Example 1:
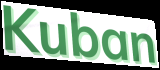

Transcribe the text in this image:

Kuban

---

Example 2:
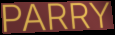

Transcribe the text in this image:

PARRY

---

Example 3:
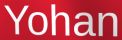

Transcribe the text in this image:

Yohan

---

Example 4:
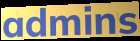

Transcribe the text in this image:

admins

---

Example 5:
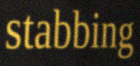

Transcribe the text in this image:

stabbing